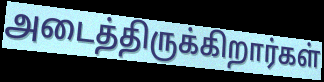
அடைத்திருக்கிறார்கள்